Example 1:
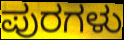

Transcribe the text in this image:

ಪುರಗಳು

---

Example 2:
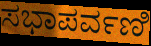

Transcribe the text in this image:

ಸಭಾಪರ್ವಣಿ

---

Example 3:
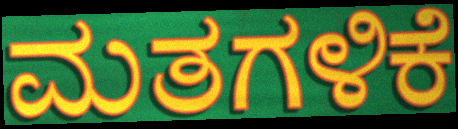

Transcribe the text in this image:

ಮತಗಳಿಕೆ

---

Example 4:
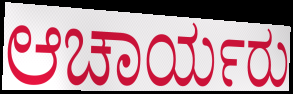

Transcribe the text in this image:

ಆಚಾರ್ಯರು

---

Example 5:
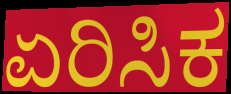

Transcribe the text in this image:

ಏರಿಸಿಕ